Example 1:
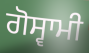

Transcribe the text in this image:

ਗੋਸ੍ਵਾਮੀ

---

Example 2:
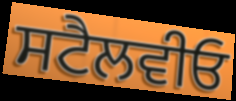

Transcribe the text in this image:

ਸਟੈਲਵੀਓ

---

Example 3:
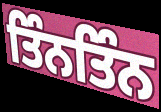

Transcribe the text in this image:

ਤਿੰਨਤਿੰਨ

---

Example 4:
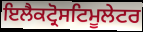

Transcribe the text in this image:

ਇਲੈਕਟ੍ਰੋਸਟਿਮੂਲੇਟਰ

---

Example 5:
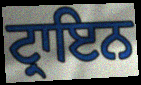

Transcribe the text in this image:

ਟ੍ਰਾਇਨ